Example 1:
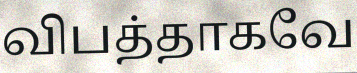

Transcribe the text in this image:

விபத்தாகவே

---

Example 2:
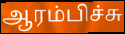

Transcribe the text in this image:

ஆரம்பிச்சு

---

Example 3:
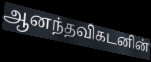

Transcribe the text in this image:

ஆனந்தவிகடனின்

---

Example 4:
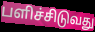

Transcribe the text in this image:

பளிச்சிடுவது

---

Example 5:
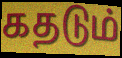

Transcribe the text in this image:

கதடும்